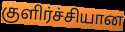
குளிர்ச்சியான